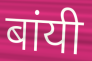
बांयी